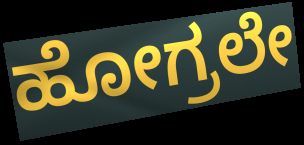
ಹೋಗ್ರಲೇ